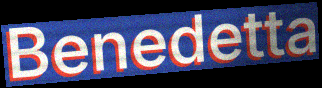
Benedetta